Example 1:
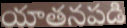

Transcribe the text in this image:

యాతనపడి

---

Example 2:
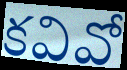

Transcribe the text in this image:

కవివో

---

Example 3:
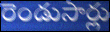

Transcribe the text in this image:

రెండుసార్లు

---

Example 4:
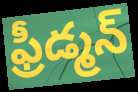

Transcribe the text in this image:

ఫ్రీడ్మన్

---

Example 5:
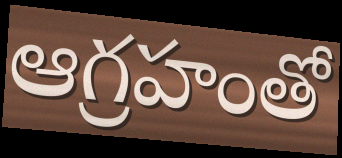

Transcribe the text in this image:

ఆగ్రహంతో